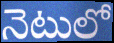
నెటులో